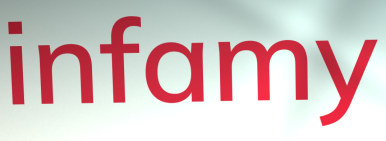
infamy